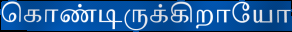
கொண்டிருக்கிறாயோ